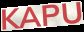
KAPU